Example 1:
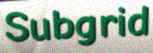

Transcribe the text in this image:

Subgrid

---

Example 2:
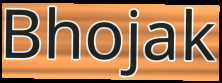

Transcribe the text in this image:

Bhojak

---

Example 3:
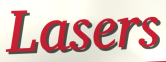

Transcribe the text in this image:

Lasers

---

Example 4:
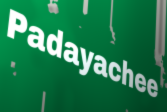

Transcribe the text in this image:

Padayachee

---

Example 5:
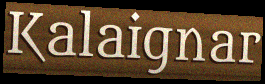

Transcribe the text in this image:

Kalaignar